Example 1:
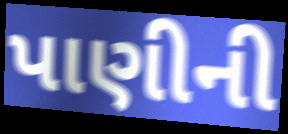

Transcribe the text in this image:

પાણીની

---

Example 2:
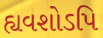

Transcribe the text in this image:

હ્યવશોઽપિ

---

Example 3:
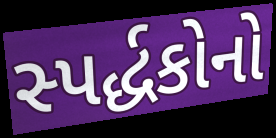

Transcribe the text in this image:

સ્પર્દ્ધકોનો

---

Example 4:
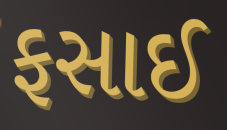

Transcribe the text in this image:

ફસાઈ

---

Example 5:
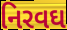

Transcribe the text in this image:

નિરવઘ